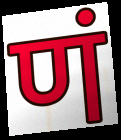
णं